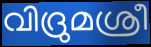
വിദ്രുമശ്രീ